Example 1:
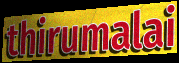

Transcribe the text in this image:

thirumalai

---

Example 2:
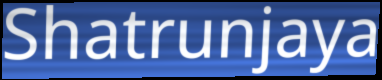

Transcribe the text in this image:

Shatrunjaya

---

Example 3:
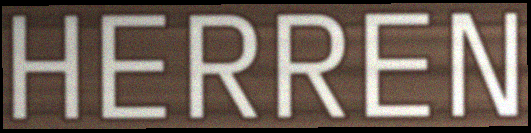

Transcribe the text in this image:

HERREN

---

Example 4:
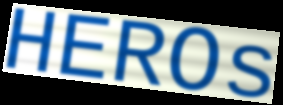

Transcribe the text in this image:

HEROs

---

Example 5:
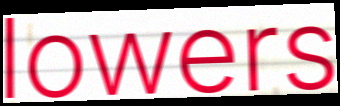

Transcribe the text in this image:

lowers